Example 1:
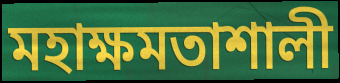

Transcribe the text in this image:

মহাক্ষমতাশালী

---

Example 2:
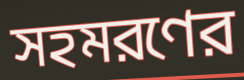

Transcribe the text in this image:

সহমরণের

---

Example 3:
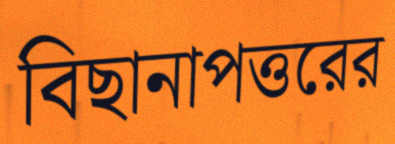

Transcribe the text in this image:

বিছানাপত্তরের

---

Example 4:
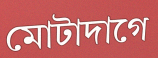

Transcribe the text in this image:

মোটাদাগে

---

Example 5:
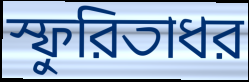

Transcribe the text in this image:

স্ফুরিতাধর